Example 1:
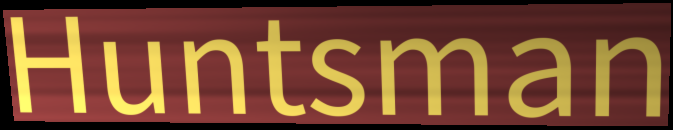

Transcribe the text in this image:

Huntsman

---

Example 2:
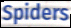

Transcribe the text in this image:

Spiders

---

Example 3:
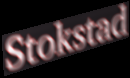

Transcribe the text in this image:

Stokstad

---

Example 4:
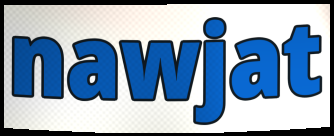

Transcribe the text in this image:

nawjat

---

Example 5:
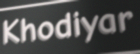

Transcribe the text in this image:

Khodiyar